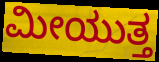
ಮೀಯುತ್ತ